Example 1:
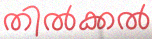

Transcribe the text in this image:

തിൽക്കൽ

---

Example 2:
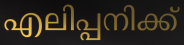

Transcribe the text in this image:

എലിപ്പനിക്ക്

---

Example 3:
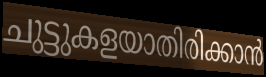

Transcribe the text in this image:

ചുട്ടുകളയാതിരിക്കാൻ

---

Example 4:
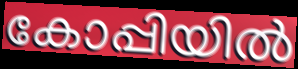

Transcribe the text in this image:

കോപ്പിയിൽ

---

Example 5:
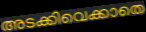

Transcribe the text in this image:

അടക്കിവെക്കാതെ